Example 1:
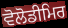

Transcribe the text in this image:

ਵੋਲੋਡੀਮਿਰ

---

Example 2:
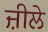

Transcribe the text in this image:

ਜ਼ੀਲੇ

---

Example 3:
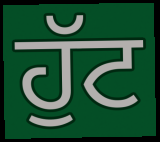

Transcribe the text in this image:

ਹੁੱਟ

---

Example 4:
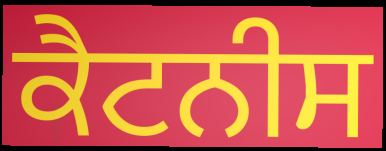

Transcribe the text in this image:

ਕੈਟਨੀਸ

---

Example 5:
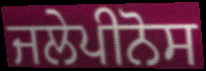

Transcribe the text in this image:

ਜਲੇਪੀਨੋਸ